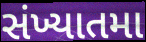
સંખ્યાતમા